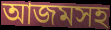
আজমসহ